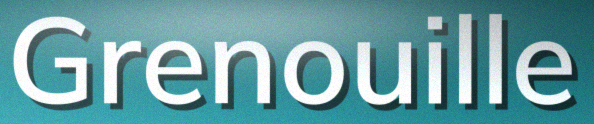
Grenouille